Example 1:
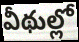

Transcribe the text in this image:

వీథుల్లో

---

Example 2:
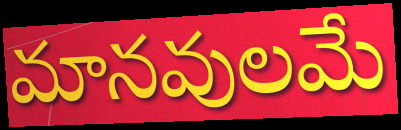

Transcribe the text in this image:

మానవులమే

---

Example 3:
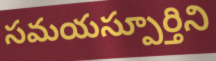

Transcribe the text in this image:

సమయస్పూర్తిని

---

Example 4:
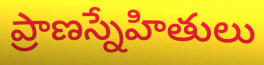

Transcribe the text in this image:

ప్రాణస్నేహితులు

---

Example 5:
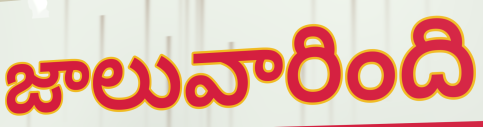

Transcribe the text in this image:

జాలువారింది